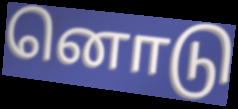
னொடு